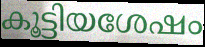
കൂട്ടിയശേഷം